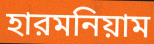
হারমনিয়াম